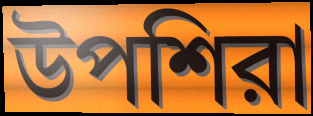
উপশিরা